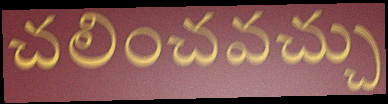
చలించవచ్చు